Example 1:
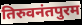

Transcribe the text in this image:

तिरुवनंतपुरम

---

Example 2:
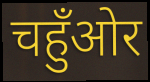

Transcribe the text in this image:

चहुँओर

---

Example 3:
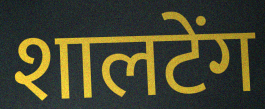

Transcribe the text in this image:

शालटेंग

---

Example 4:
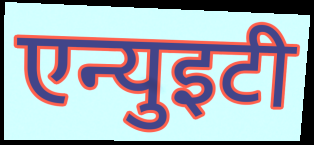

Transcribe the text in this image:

एन्युइटी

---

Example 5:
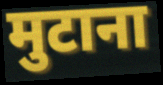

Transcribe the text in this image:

मुटाना